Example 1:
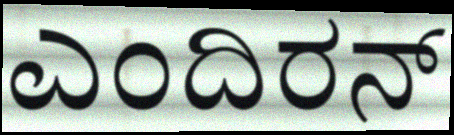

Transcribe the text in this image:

ಎಂದಿರನ್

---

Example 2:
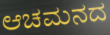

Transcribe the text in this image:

ಆಚಮನದ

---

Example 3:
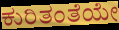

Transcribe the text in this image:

ಕುರಿತಂತೆಯೇ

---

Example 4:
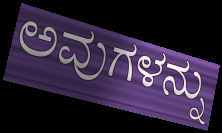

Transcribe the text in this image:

ಅವುಗಳನ್ನು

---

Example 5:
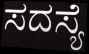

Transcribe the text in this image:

ಸದಸ್ಯೆ